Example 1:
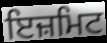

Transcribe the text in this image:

ਇਜ਼ਮਿਟ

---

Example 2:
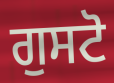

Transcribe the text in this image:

ਗੁਸਟੋ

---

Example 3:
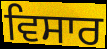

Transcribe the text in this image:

ਵਿਸਾਰ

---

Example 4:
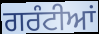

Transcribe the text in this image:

ਗਰੰਟੀਆਂ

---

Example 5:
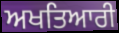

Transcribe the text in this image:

ਅਖਤਿਆਰੀ